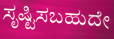
ಸೃಷ್ಟಿಸಬಹುದೇ